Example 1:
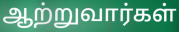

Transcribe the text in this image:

ஆற்றுவார்கள்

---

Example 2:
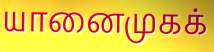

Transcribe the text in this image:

யானைமுகக்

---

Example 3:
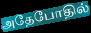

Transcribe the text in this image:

அதேபோதில்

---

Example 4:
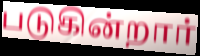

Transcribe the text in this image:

படுகின்றார்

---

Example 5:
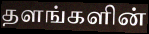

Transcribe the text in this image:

தளங்களின்